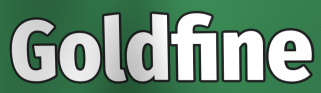
Goldfine